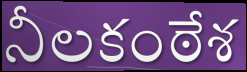
నీలకంఠేశ